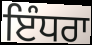
ਇੰਧਰਾ